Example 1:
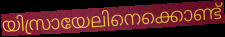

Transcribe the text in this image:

യിസ്രായേലിനെക്കൊണ്ട്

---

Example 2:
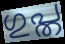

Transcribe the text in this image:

ഗുപ്ത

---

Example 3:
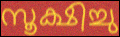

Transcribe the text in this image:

സൂക്ഷിച്ചു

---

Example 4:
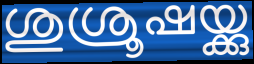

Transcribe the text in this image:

ശുശ്രൂഷയ്ക്കു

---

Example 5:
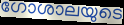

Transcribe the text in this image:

ഗോശാലയുടെ